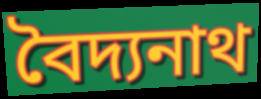
বৈদ্যনাথ